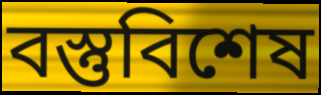
বস্তুবিশেষ